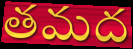
తమద